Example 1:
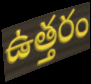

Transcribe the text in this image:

ఉత్తరం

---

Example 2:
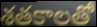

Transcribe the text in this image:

శతకాలతో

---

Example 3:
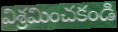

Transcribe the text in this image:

విశ్రమించకండి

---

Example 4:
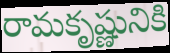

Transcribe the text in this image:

రామకృష్ణునికి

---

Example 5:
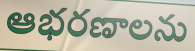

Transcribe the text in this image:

ఆభరణాలను